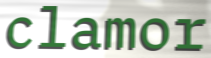
clamor